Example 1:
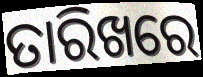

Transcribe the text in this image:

ତାରିଖରେ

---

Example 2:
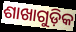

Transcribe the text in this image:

ଶାଖାଗୁଡ଼ିକ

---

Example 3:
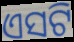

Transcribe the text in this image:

ଏସଟି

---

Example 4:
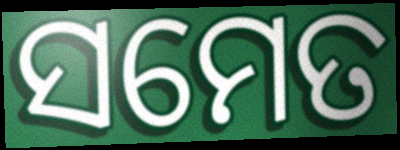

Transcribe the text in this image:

ସମେତ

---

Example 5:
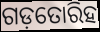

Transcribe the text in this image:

ଗଡ଼ତୋରିହ